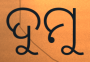
ଦୁମୁ